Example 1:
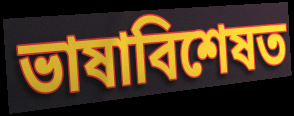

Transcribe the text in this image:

ভাষাবিশেষত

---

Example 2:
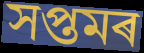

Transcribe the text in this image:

সপ্তমৰ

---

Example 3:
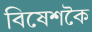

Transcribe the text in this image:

বিষেশকৈ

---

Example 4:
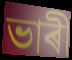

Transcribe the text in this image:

ভাৰী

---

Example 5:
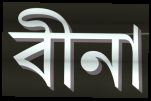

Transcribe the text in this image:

বীনা